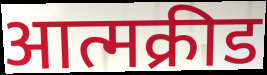
आत्मक्रीड